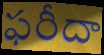
ఫరీదా